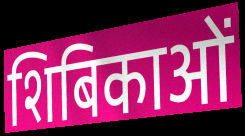
शिबिकाओं